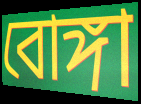
বোঙ্গা